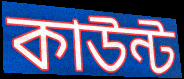
কাউন্ট